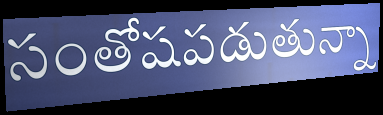
సంతోషపడుతున్నా